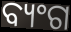
ବ୍ୟଂଗ